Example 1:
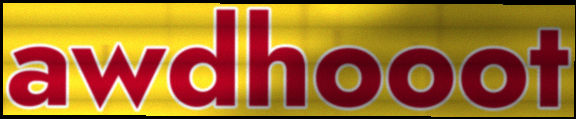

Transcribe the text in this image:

awdhooot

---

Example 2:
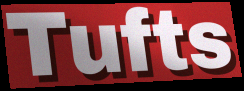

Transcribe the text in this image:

Tufts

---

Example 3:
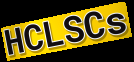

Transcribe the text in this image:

HCLSCs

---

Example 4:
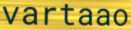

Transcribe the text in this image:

vartaao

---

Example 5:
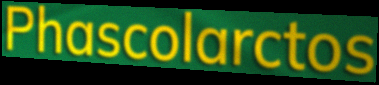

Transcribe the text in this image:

Phascolarctos